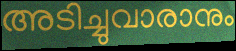
അടിച്ചുവാരാനും